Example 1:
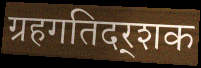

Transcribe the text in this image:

ग्रहगतिदर्शक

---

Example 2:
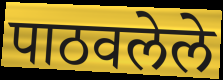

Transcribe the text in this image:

पाठवलेले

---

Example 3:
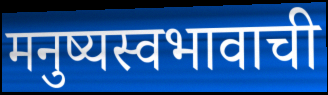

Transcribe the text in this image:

मनुष्यस्वभावाची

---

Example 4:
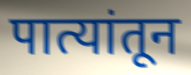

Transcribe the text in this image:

पात्यांतून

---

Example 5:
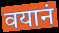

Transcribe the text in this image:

वयानं